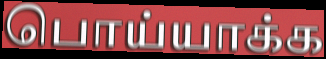
பொய்யாக்க